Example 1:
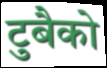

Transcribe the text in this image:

टुबैको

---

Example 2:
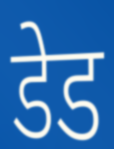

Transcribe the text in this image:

डेड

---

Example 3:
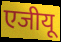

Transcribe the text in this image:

एजीयू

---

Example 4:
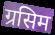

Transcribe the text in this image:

ग्रसिम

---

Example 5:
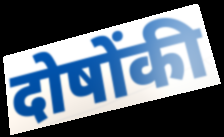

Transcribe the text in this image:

दोषोंकी